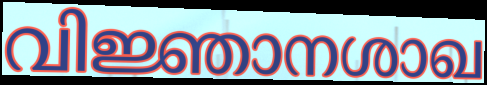
വിജ്ഞാനശാഖ